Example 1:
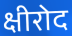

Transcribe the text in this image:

क्षीरोद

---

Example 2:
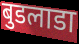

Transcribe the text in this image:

बुडलाडा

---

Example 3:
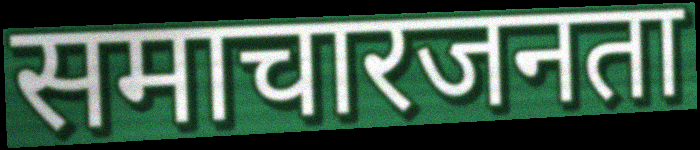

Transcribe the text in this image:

समाचारजनता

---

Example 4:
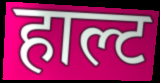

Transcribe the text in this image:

हाल्ट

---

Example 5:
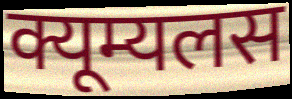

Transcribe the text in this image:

क्यूम्यलस